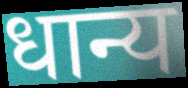
धान्य